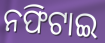
ନଫିଟାଇ